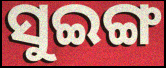
ସୁଇଙ୍ଗ